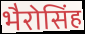
भैरोसिंह